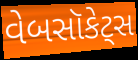
વેબસૉકેટ્સ